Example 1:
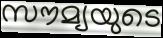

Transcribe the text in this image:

സൗമ്യയുടെ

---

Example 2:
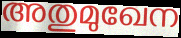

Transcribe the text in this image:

അതുമുഖേന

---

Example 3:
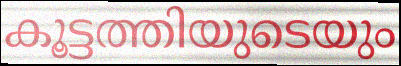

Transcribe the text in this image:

കൂട്ടത്തിയുടെയും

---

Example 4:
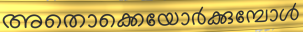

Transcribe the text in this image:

അതൊക്കെയോർക്കുമ്പോൾ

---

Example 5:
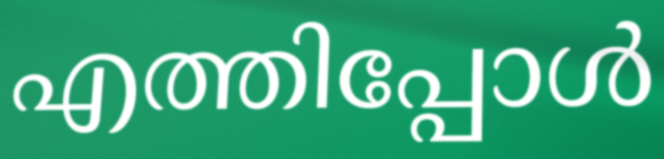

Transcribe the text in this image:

എത്തിപ്പോൾ